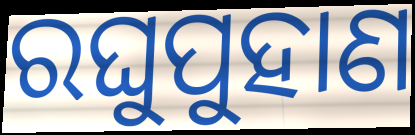
ରଘୁପୁହାଣ